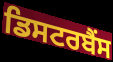
ਡਿਸਟਰਬੈਂਸ